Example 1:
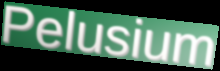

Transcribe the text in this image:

Pelusium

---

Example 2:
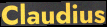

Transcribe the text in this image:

Claudius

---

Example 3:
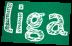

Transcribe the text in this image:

liga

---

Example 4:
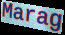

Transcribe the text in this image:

Marag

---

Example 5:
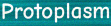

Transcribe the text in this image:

Protoplasm